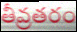
తీవ్రతరం